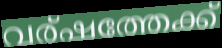
വര്ഷത്തേക്ക്